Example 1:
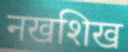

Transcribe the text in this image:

नखशिख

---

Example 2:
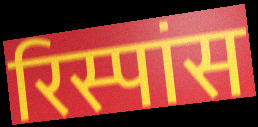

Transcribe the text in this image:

रिस्पांस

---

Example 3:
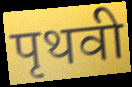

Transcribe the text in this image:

पृथवी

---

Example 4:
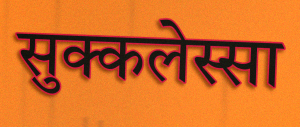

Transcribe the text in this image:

सुक्कलेस्सा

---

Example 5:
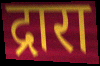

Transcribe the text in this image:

द्रारा